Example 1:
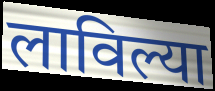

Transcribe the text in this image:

लाविल्या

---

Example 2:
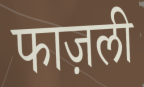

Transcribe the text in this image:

फाज़ली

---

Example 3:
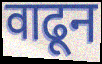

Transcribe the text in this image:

वाढून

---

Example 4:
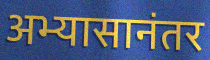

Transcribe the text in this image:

अभ्यासानंतर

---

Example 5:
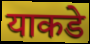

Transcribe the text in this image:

याकडे